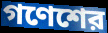
গণেশের